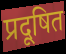
प्रदूषित